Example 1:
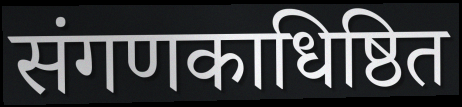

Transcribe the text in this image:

संगणकाधिष्ठित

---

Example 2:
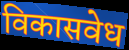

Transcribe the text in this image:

विकासवेध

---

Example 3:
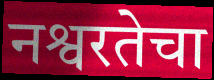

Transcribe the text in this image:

नश्वरतेचा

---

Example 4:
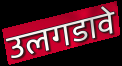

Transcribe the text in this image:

उलगडावे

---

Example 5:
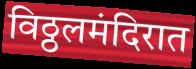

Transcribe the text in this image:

विठ्ठलमंदिरात